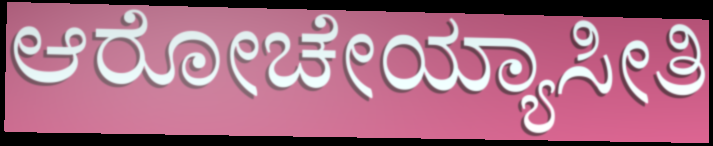
ಆರೋಚೇಯ್ಯಾಸೀತಿ